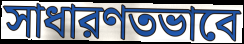
সাধারণতভাবে